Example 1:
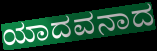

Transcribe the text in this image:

ಯಾದವನಾದ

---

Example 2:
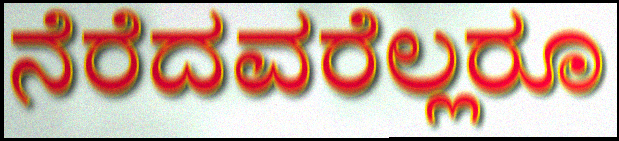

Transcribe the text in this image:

ನೆರೆದವರೆಲ್ಲರೂ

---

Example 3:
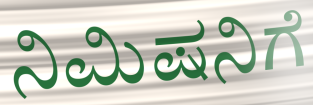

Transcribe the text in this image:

ನಿಮಿಷನಿಗೆ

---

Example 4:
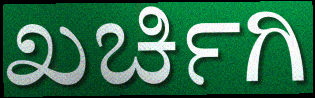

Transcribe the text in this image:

ಖರ್ಚಿಗಿ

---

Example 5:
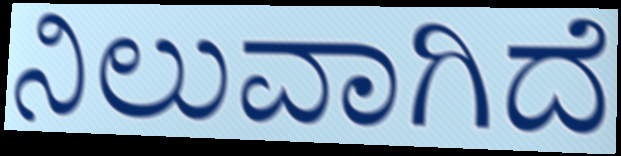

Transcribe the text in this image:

ನಿಲುವಾಗಿದೆ